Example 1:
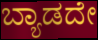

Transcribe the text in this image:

ಬ್ಯಾಡದೇ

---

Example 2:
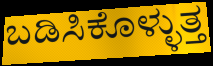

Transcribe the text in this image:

ಬಡಿಸಿಕೊಳ್ಳುತ್ತ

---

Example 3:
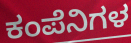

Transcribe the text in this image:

ಕಂಪೆನಿಗಳ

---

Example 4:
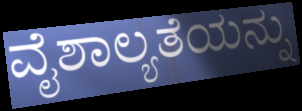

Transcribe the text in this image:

ವೈಶಾಲ್ಯತೆಯನ್ನು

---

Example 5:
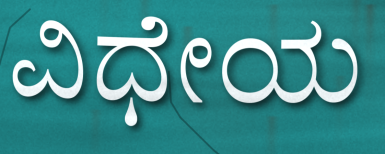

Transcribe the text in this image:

ವಿಧೇಯ